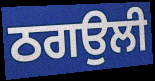
ਠਗਉਲੀ